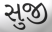
સુજી